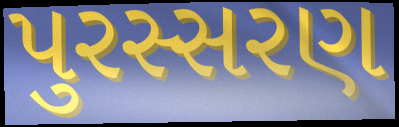
પુરસ્સરણ